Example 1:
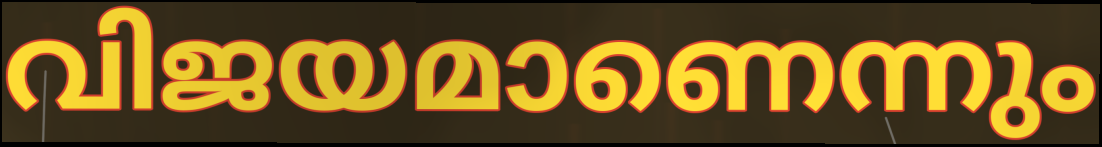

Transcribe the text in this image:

വിജയമാണെന്നും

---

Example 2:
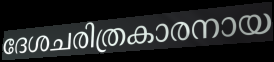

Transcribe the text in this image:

ദേശചരിത്രകാരനായ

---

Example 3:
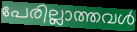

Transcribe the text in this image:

പേരില്ലാത്തവൾ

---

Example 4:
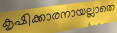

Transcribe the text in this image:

കൃഷിക്കാരനായല്ലാതെ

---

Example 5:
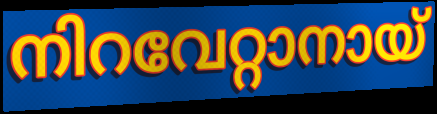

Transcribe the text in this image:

നിറവേറ്റാനായ്